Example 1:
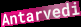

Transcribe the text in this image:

Antarvedi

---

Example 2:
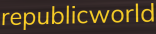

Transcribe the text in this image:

republicworld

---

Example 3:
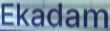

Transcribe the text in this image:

Ekadam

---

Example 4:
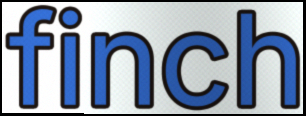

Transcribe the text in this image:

finch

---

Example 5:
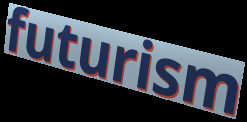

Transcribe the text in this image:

futurism